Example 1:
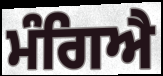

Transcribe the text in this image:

ਮੰਗਿਐ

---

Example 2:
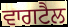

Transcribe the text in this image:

ਵਾਗਟੈਲ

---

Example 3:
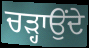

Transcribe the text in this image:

ਚੜ੍ਹਾਉਂਦੇ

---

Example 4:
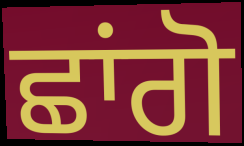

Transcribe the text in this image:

ਛਾਂਗੋ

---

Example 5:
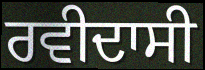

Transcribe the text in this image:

ਰਵੀਦਾਸੀ